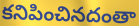
కనిపించినదంతా